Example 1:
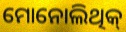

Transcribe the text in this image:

ମୋନୋଲିଥିକ୍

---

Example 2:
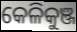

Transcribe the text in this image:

କେଳିକୁଞ୍ଜ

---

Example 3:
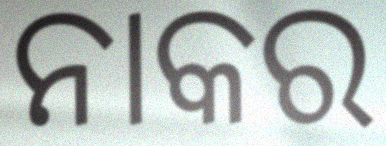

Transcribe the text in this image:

ନାକର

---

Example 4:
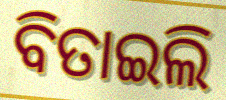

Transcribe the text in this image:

ବିତାଇଲି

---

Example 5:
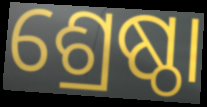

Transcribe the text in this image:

ଶ୍ରେଷ୍ଠା